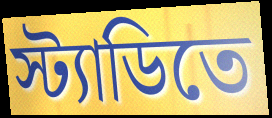
স্ট্যাডিতে